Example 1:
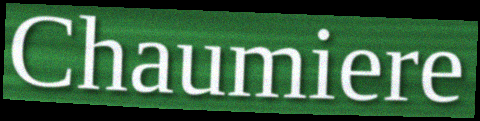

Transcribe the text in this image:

Chaumiere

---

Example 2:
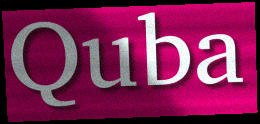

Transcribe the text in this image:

Quba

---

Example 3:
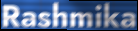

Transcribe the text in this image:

Rashmika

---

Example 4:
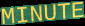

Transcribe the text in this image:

MINUTE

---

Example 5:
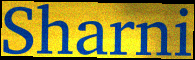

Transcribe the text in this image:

Sharni